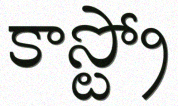
కాస్ట్రో